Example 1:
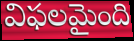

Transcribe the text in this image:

విఫలమైంది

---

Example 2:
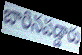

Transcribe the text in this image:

బారినపడ్డారు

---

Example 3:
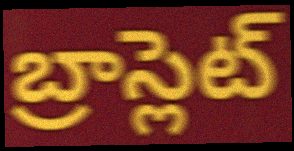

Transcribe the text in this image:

బ్రాస్లెట్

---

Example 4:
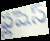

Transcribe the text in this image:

ఫ్లషెస్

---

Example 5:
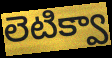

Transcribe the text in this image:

లెటిక్వా